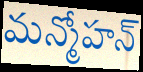
మన్మోహన్